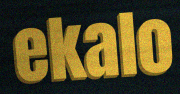
ekalo